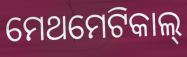
ମେଥମେଟିକାଲ୍